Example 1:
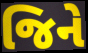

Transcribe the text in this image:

જિને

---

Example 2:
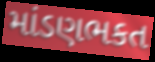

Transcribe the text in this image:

માંડણભકત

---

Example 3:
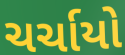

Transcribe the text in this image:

ચર્ચાયો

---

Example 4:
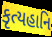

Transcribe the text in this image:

કૃત્યહાનિ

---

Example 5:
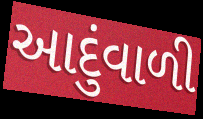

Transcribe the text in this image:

આદુંવાળી